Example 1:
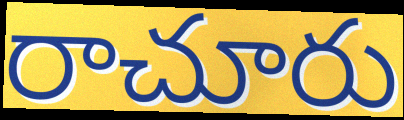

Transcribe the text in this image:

రాచూరు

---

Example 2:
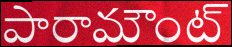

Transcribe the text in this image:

పారామౌంట్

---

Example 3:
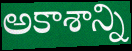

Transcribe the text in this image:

అకాశాన్ని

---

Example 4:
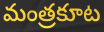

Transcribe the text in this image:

మంత్రకూట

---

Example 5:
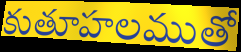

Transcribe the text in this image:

కుతూహలముతో